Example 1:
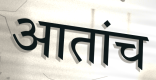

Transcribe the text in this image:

आतांच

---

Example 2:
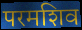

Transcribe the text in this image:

परमशिव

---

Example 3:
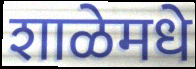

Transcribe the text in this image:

शाळेमधे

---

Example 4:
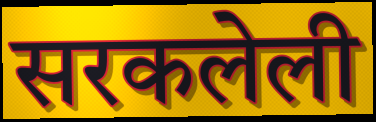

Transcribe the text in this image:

सरकलेली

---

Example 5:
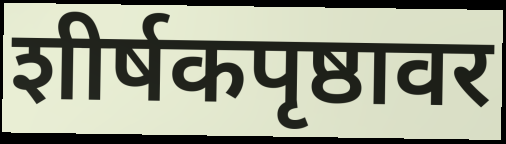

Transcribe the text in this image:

शीर्षकपृष्ठावर